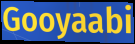
Gooyaabi